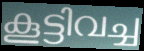
കൂട്ടിവച്ച